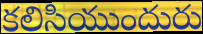
కలిసియుందురు